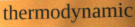
thermodynamic